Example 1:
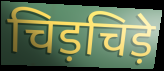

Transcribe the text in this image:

चिड़चिड़े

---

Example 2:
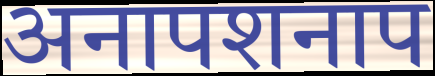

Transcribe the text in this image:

अनापशनाप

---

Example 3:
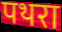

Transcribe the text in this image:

पथरा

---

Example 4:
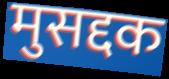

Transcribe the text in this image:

मुसद्दक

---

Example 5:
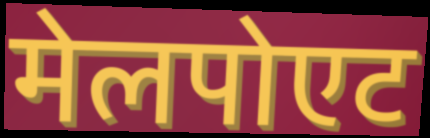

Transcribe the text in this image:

मेलपोएट